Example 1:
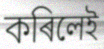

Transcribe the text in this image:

কৰিলেই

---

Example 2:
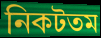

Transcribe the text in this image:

নিকটতম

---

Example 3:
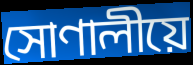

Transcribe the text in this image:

সোণালীয়ে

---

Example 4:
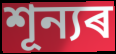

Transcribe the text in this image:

শূন্যৰ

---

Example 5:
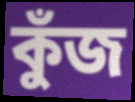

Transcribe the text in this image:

কুঁজ